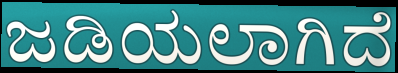
ಜಡಿಯಲಾಗಿದೆ